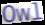
Owl